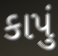
કાપું